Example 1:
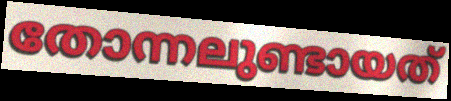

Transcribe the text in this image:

തോന്നലുണ്ടായത്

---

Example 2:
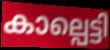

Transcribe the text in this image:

കാല്പെട്ടി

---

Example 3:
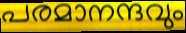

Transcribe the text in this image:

പരമാനന്ദവും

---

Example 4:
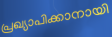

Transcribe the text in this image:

പ്രഖ്യാപിക്കാനായി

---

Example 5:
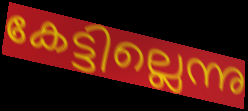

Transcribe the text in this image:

കേട്ടില്ലെന്നു